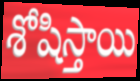
శోషిస్తాయి